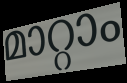
മാറ്റാം